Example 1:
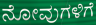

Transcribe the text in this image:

ನೋವುಗಳಿಗೆ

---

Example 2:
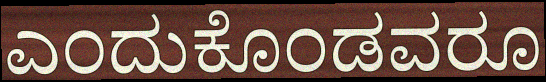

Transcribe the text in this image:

ಎಂದುಕೊಂಡವರೂ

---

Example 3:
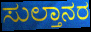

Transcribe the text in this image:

ಸುಲ್ತಾನರ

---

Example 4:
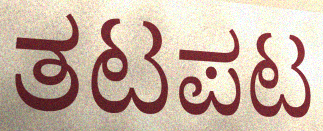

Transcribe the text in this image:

ತಟಪಟ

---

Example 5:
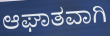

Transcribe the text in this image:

ಆಘಾತವಾಗಿ